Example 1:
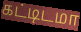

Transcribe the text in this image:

கட்டிடமா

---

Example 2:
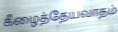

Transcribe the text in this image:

கீழைத்தேயவாதம்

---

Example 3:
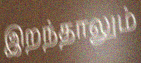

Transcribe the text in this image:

இறந்தாலும்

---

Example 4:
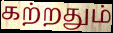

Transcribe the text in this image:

கற்றதும்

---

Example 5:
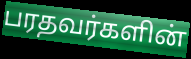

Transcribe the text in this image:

பரதவர்களின்